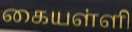
கையள்ளி